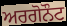
ਅਰਗੋਨੌਟ